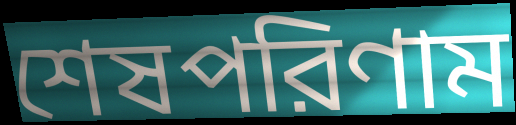
শেষপরিণাম